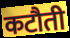
कटौती